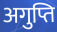
अगुप्ति